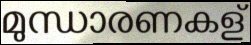
മുന്ധാരണകള്